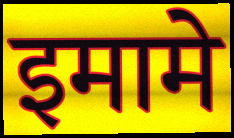
इमामे